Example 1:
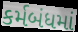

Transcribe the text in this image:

કર્મબંધમાં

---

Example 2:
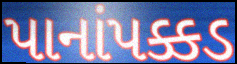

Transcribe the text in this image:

પાનાંપક્કડ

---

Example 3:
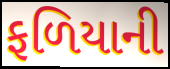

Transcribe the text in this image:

ફળિયાની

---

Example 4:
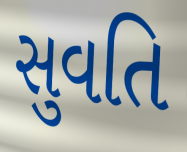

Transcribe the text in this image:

સુવતિ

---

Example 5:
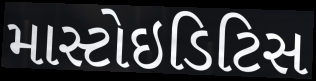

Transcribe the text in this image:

માસ્ટોઇડિટિસ